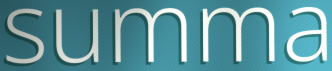
summa